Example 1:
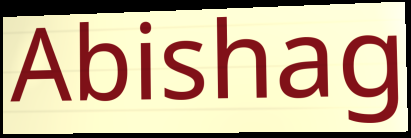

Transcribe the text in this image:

Abishag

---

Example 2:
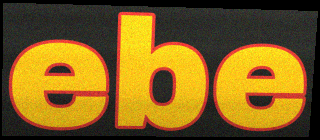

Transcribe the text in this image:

ebe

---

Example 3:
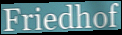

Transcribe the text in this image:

Friedhof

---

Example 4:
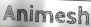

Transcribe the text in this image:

Animesh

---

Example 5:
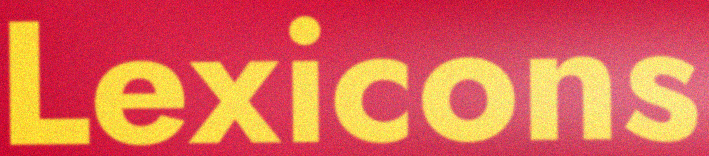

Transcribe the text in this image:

Lexicons